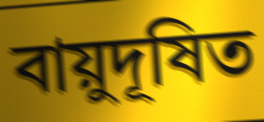
বায়ুদূষিত